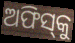
ଅଫିସ୍‌କୁ